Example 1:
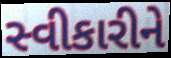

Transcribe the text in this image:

સ્વીકારીને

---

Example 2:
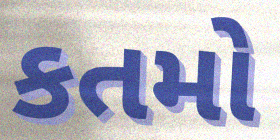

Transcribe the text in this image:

કતમો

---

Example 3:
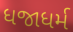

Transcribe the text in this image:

ધજાધર્મ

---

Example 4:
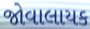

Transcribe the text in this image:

જોવાલાયક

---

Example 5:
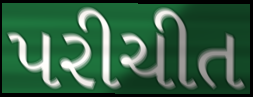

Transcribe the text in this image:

પરીચીત